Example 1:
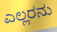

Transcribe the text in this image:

ಎಲ್ಲರನು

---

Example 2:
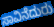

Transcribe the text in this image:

ಸಾವಿನೆದುರು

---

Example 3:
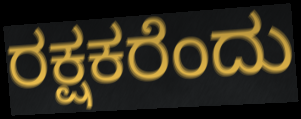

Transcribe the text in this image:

ರಕ್ಷಕರೆಂದು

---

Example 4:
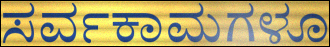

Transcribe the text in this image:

ಸರ್ವಕಾಮಗಳೂ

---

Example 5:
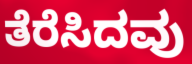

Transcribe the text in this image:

ತೆರೆಸಿದವು